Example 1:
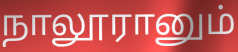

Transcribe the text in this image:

நாலூரானும்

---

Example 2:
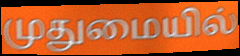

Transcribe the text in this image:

முதுமையில்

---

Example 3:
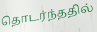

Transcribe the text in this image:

தொடர்ந்ததில்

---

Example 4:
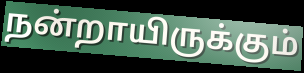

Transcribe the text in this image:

நன்றாயிருக்கும்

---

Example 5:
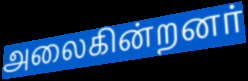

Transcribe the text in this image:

அலைகின்றனர்